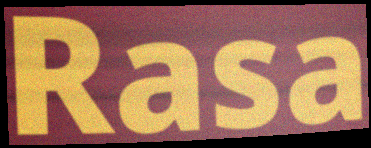
Rasa